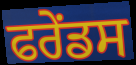
ਫਰੇਂਡਸ